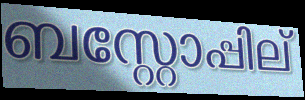
ബസ്റ്റോപ്പില്